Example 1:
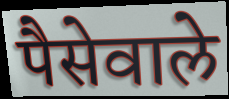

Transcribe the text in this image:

पैसेवाले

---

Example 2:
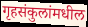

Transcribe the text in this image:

गृहसंकुलांमधील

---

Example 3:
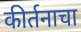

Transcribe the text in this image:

कीर्तनाचा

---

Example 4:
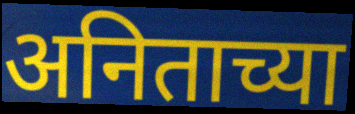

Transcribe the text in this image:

अनिताच्या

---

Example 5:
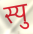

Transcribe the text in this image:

स्यु